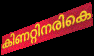
കിണറ്റിനരികെ